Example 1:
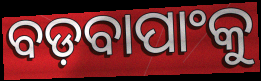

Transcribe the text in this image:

ବଡ଼ବାପାଂକୁ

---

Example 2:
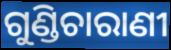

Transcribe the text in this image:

ଗୁଣ୍ଡିଚାରାଣୀ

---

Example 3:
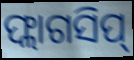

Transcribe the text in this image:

ଫ୍ଲାଗସିପ୍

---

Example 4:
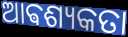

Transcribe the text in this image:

ଆଵଶ୍ୟକତା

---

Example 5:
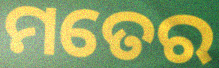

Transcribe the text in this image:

ମତେର